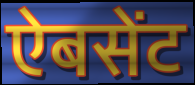
ऐबसेंट